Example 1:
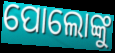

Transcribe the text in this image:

ପୋଲୋଙ୍କୁ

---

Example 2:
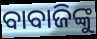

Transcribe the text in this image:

ବାବାଜିଙ୍କୁ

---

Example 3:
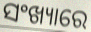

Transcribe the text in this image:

ସଂଖ୍ଯାରେ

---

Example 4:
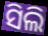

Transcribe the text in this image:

ସିଲି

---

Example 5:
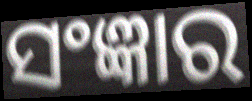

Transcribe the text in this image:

ସଂଜ୍ଞାର